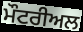
ਮੌਟਰੀਅਲ